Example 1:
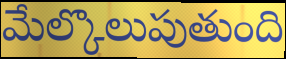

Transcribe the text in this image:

మేల్కొలుపుతుంది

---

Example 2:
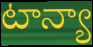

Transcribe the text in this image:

టాన్యా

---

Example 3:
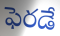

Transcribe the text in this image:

ఫెరడే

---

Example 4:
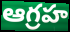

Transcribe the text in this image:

ఆగ్రహ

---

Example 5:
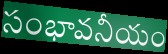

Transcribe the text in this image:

సంభావనీయం